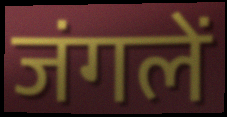
जंगलें